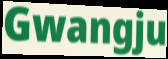
Gwangju